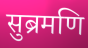
सुब्रमणि